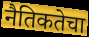
नैतिकतेचा